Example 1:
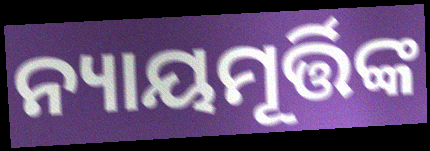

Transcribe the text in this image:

ନ୍ୟାୟମୂର୍ତ୍ତିଙ୍କ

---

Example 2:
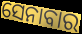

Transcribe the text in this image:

ସେନାବାର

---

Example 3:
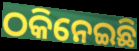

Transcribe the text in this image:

ଠକିନେଇଛି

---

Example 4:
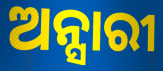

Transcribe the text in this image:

ଅନ୍ସାରୀ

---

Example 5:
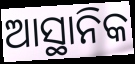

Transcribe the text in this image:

ଆସ୍ଥାନିକ